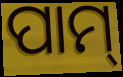
ପାମ୍